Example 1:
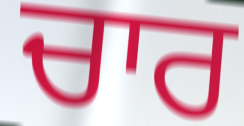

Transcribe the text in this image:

ਚਾਰ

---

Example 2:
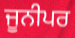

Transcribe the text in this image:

ਜੂਨੀਪਰ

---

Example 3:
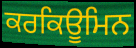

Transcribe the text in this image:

ਕਰਕਿਊਮਿਨ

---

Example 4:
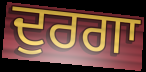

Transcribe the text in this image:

ਦੁਰਗਾ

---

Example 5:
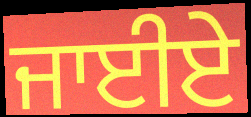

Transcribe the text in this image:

ਜਾਈਏ